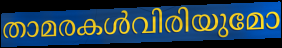
താമരകൾവിരിയുമോ